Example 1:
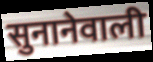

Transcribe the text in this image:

सुनानेवाली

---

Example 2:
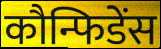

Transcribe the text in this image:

कौन्फिडेंस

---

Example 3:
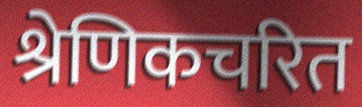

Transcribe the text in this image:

श्रेणिकचरित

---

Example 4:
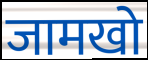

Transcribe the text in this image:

जामखो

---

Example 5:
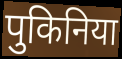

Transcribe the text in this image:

पुकिनिया